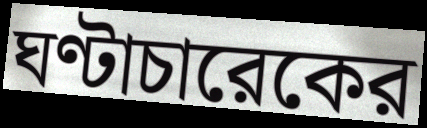
ঘণ্টাচারেকের